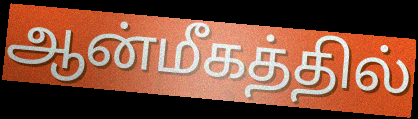
ஆன்மீகத்தில்